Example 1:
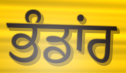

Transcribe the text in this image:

ਭੰਡਾਂਰ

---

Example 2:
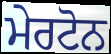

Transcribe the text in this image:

ਮੇਰਟੋਨ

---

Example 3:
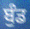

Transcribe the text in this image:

ਬੁੰਡ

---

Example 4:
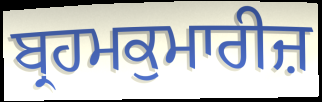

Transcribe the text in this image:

ਬ੍ਰਹਮਕੁਮਾਰੀਜ਼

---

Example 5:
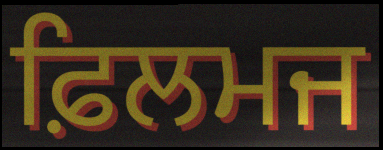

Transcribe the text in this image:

ਫ਼ਿਲਮਜ